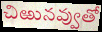
చిఱునవ్వుతో